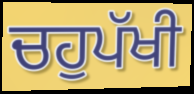
ਚਹੁਪੱਖੀ